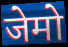
जेमो